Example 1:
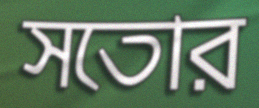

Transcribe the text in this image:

সতোর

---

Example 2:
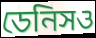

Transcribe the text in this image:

ডেনিসও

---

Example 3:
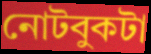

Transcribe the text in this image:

নোটবুকটা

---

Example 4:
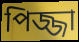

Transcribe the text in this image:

পিজ্জা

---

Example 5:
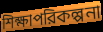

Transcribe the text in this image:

শিক্ষাপরিকল্পনা